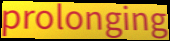
prolonging